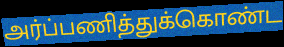
அர்ப்பணித்துக்கொண்ட